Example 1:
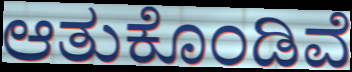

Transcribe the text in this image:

ಆತುಕೊಂಡಿವೆ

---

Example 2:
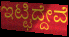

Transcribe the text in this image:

ಇಟ್ಟಿದ್ದೇವೆ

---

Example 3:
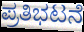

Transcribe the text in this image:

ಪ್ರತಿಭಟನೆ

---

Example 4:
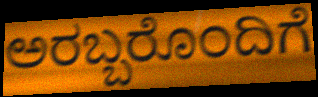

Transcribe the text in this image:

ಅರಬ್ಬರೊಂದಿಗೆ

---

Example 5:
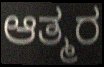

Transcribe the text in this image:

ಆತ್ಮರ